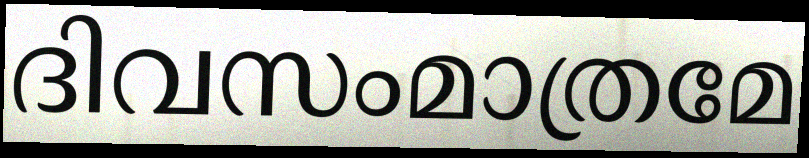
ദിവസംമാത്രമേ